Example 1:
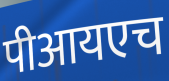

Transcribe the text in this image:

पीआयएच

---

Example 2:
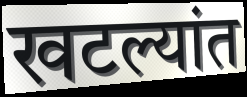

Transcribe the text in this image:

खटल्यांत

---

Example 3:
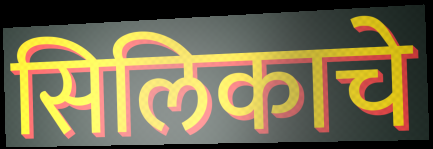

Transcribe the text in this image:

सिलिकाचे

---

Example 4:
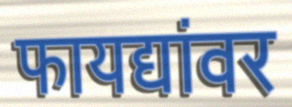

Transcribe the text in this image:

फायद्यांवर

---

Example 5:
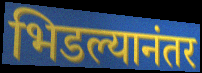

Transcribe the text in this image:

भिडल्यानंतर